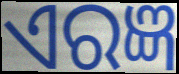
ଏରଜ୍ଞ